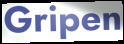
Gripen